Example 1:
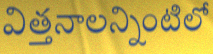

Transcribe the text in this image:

విత్తనాలన్నింటిలో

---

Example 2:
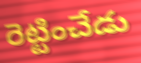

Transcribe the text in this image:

రెట్టించేడు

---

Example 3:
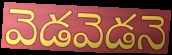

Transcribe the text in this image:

వెడవెడనె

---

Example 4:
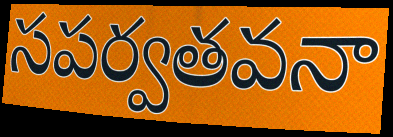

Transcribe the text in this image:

సపర్వతవనా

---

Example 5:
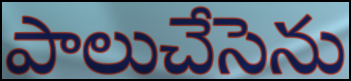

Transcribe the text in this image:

పాలుచేసెను